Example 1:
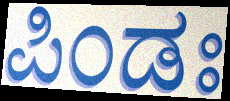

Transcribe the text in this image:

ಪಿಂಡಃ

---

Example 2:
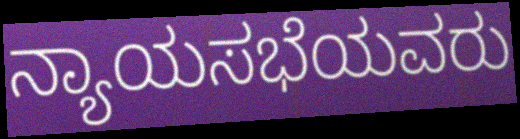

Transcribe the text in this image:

ನ್ಯಾಯಸಭೆಯವರು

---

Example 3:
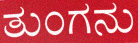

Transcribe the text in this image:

ತುಂಗನು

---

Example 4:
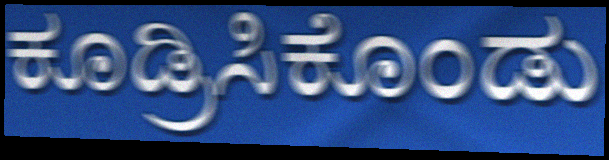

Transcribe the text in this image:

ಕೂಡ್ರಿಸಿಕೊಂಡು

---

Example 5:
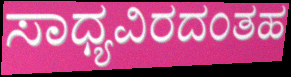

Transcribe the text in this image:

ಸಾಧ್ಯವಿರದಂತಹ